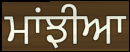
ਮਾਂਝੀਆ